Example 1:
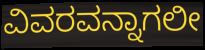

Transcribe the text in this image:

ವಿವರವನ್ನಾಗಲೀ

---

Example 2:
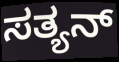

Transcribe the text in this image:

ಸತ್ಯನ್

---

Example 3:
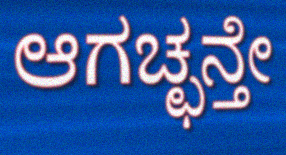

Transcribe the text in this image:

ಆಗಚ್ಛನ್ತೇ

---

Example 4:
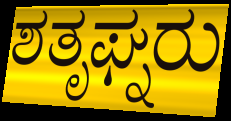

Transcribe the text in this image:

ಶತೃಘ್ನರು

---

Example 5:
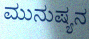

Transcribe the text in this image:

ಮುನುಷ್ಯನ